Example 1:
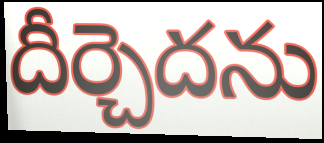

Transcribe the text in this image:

దీర్చెదను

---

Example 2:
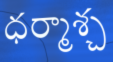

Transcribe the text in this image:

ధర్మాశ్చ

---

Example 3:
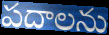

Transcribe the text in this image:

పదాలను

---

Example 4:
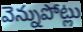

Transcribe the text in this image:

వెన్నుపోట్లు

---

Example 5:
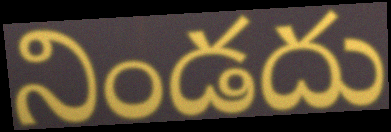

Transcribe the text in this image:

నిండదు